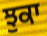
ਝੁਕਾ